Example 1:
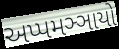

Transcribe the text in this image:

અપ્પમઞ્ઞાયો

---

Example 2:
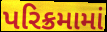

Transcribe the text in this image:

પરિક્રમામાં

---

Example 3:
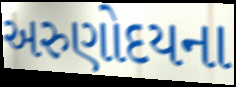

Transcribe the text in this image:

અરુણોદયના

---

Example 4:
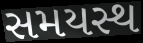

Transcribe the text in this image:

સમયસ્થ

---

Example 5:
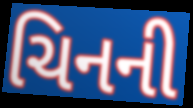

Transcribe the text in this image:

ચિનની